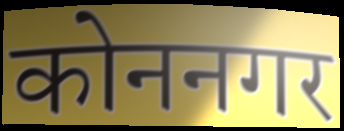
कोननगर